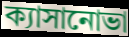
ক্যাসানোভা